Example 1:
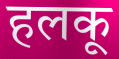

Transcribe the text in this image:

हलकू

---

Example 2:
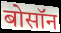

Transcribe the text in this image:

बोसॉन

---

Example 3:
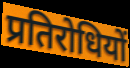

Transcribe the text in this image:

प्रतिरोधियों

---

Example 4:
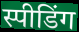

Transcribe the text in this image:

स्‍पीडिंग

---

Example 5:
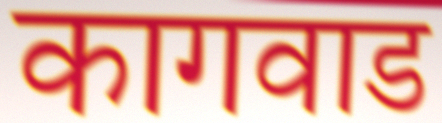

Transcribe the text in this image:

कागवाड